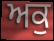
ਅਕੁ